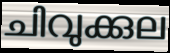
ചിവുക്കുല